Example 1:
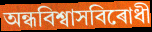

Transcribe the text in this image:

অন্ধবিশ্বাসবিৰোধী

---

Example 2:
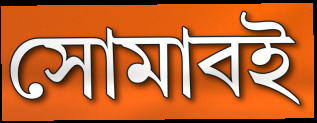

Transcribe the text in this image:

সোমাবই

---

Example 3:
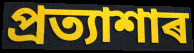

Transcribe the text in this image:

প্ৰত্যাশাৰ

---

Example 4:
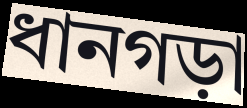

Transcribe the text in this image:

ধানগড়া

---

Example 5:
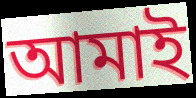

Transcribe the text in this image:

আমাই